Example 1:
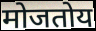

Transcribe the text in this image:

मोजतोय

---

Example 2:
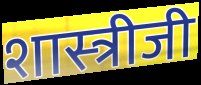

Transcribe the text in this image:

शास्त्रीजी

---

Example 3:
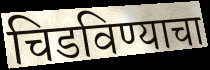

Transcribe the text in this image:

चिडविण्याचा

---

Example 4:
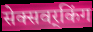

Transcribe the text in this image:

सेक्सवर्किंग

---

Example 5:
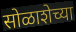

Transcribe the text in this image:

सोळाशेच्या